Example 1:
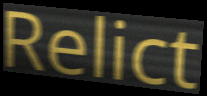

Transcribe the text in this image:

Relict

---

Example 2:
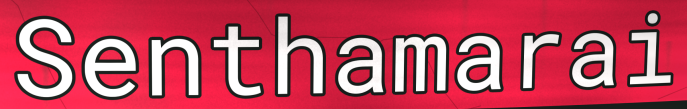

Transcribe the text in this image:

Senthamarai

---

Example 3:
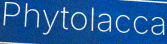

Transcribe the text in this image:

Phytolacca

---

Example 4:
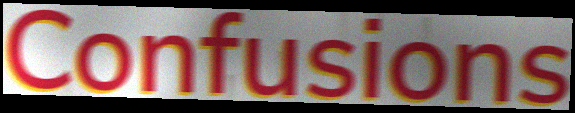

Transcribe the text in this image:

Confusions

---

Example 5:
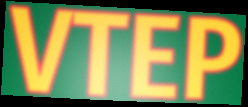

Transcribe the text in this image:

VTEP